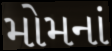
મોમનાં